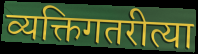
व्यक्तिगतरीत्या